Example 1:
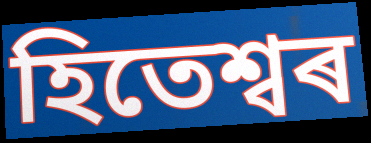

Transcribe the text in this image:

হিতেশ্বৰ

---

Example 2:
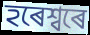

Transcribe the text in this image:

হৰেশ্বৰে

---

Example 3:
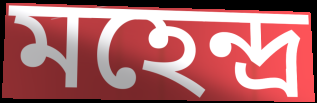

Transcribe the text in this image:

মহেন্দ্ৰ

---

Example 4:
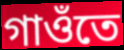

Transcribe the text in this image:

গাওঁতে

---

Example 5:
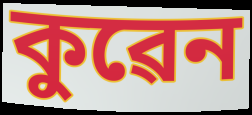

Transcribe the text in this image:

কুৱেন